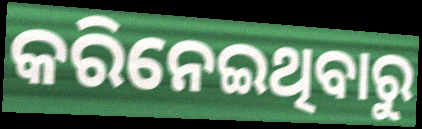
କରିନେଇଥିବାରୁ